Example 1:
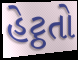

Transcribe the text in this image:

હેટ્ઠતો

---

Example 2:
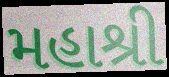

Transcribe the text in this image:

મહાશ્રી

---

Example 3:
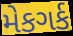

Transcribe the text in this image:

મેકગર્ક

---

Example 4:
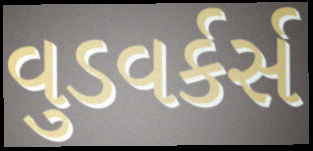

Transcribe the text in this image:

વુડવર્કર્સ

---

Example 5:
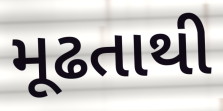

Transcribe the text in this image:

મૂઢતાથી